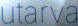
utarva